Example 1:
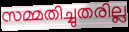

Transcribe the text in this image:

സമ്മതിച്ചുതരില്ല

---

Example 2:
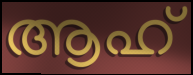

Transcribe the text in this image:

ആഹ്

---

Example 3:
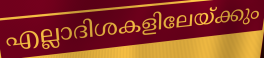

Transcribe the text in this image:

എല്ലാദിശകളിലേയ്ക്കും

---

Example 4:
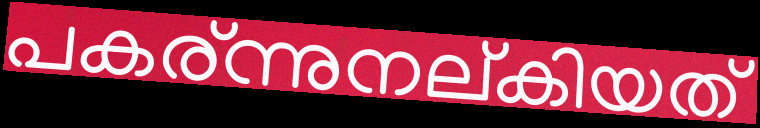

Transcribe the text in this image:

പകര്ന്നുനല്കിയത്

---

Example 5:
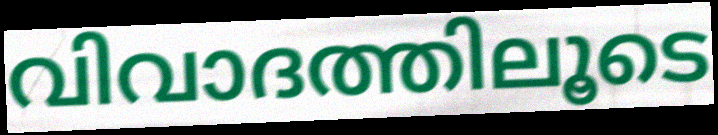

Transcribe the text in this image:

വിവാദത്തിലൂടെ